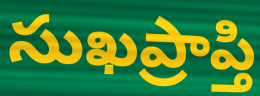
సుఖప్రాప్తి